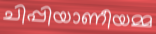
ചിപ്പിയാണീയമ്മ